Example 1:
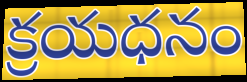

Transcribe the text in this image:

క్రయధనం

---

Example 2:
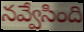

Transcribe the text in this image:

నవ్వేసింది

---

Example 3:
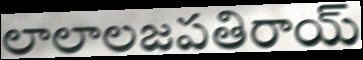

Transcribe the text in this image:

లాలాలజపతిరాయ్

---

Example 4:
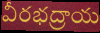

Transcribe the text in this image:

వీరభద్రాయ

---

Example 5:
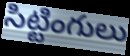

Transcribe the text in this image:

సిట్టింగులు